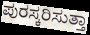
ಪುರಸ್ಕರಿಸುತ್ತಾ